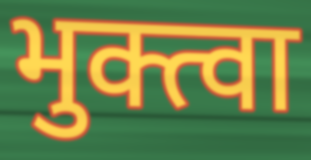
भुक्त्वा